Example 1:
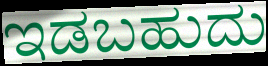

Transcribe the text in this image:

ಇಡಬಹುದು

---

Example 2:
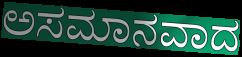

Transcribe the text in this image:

ಅಸಮಾನವಾದ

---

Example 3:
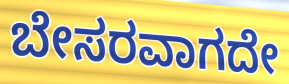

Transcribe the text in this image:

ಬೇಸರವಾಗದೇ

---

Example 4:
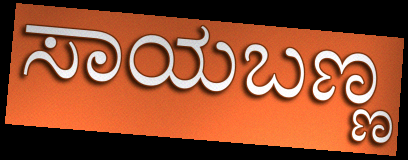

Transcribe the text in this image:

ಸಾಯಬಣ್ಣ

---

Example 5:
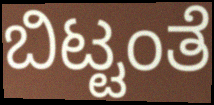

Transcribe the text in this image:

ಬಿಟ್ಟಂತೆ